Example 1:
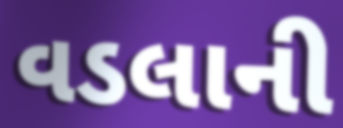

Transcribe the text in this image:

વડલાની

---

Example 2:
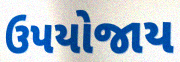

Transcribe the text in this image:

ઉપયોજાય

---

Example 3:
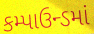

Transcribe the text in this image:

કમ્પાઉન્ડમાં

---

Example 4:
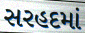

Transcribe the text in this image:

સરહદમાં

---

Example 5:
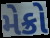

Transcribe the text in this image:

મેક્રો